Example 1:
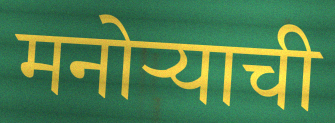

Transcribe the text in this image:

मनोऱ्याची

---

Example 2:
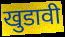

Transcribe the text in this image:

खुडावी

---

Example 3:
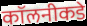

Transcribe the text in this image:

कॉलनीकडे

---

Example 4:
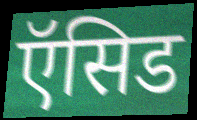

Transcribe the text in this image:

ऍसिड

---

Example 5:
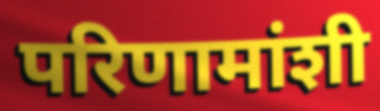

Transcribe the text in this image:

परिणामांशी